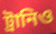
ট্রানিও